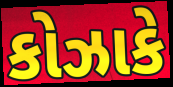
કોઝાકે